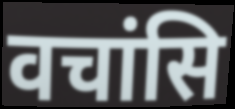
वचांसि